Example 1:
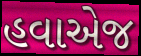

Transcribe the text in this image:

હવાએજ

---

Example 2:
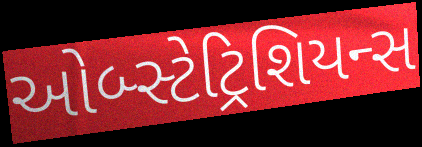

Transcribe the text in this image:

ઓબ્સ્ટેટ્રિશિયન્સ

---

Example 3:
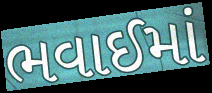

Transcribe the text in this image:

ભવાઈમાં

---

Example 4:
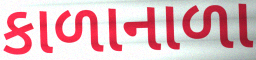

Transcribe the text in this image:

કાળાનાળા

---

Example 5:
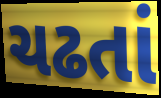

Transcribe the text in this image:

ચઢતાં